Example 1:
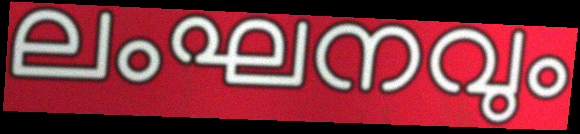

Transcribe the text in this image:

ലംഘനവും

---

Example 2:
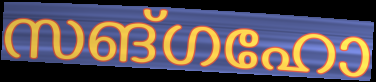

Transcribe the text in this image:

സങ്ഗഹോ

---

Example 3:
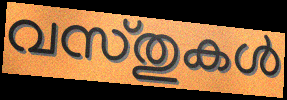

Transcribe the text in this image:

വസ്തുകൾ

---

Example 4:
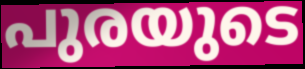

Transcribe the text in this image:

പുരയുടെ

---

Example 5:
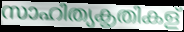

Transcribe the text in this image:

സാഹിത്യകൃതികള്